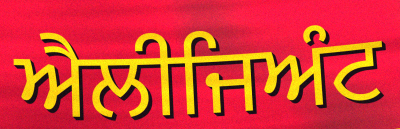
ਐਲੀਜਿਅੰਟ